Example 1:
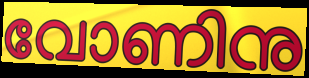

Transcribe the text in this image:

വോണിനു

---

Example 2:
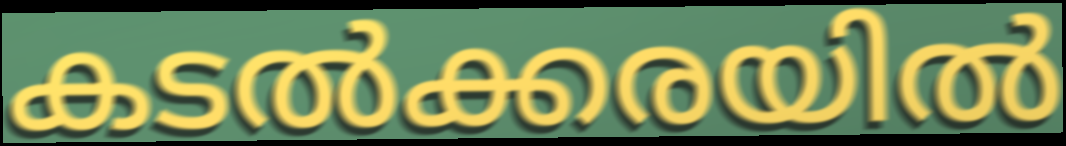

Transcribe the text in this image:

കടൽക്കരയിൽ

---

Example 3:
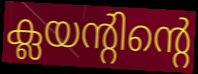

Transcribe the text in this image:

ക്ലയന്റിന്റെ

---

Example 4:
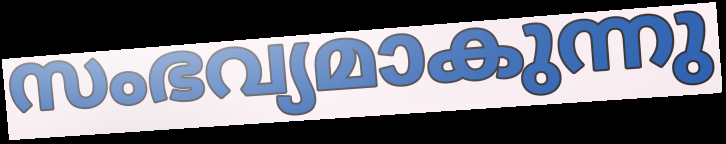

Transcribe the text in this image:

സംഭവ്യമാകുന്നു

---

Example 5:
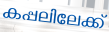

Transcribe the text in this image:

കപ്പലിലേക്ക്